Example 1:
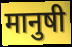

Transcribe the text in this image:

मानुषी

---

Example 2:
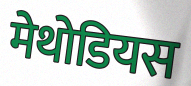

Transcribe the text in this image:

मेथोडियस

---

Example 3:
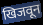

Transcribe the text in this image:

खिजवून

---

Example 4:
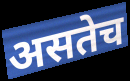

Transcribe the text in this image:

असतेच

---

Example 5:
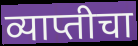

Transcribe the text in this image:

व्याप्तीचा